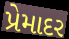
પ્રેમાદર